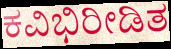
ಕವಿಭಿರೀಡಿತ